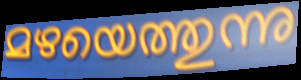
മഴയെത്തുന്നു